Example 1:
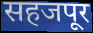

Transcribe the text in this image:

सहजपूर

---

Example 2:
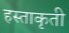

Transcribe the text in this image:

हस्ताकृती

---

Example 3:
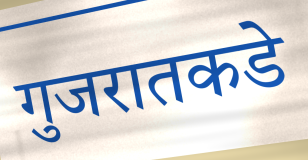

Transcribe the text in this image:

गुजरातकडे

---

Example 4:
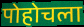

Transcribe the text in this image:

पोहोचला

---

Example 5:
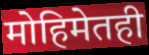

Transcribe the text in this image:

मोहिमेतही